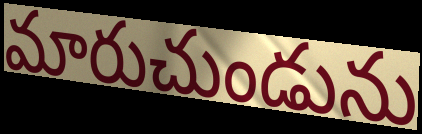
మారుచుండును